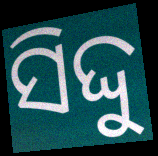
ସିଦ୍ଦୁ